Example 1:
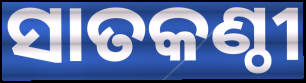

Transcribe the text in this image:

ସାତକଣ୍ଠୀ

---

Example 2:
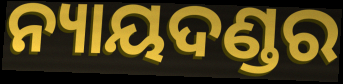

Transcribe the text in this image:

ନ୍ୟାୟଦଣ୍ଡର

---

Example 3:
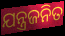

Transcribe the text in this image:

ଯନ୍ତ୍ରଜନିତ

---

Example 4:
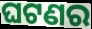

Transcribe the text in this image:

ଘଟଣର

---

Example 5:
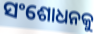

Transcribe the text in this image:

ସଂଶୋଧନକୁ